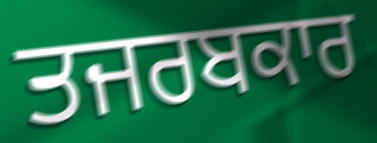
ਤਜਰਬਕਾਰ